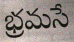
భ్రమసే